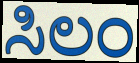
ಸಿಲಂ